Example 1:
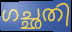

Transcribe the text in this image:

ഗച്ഛതി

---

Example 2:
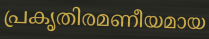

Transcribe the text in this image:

പ്രകൃതിരമണീയമായ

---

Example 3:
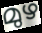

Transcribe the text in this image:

മുഴ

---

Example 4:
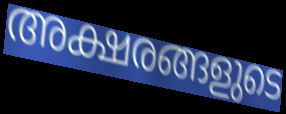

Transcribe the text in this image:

അക്ഷരങ്ങളുടെ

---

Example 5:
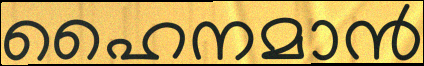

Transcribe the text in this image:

ഹൈനമാൻ